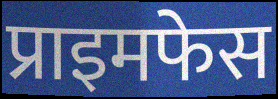
प्राइमफेस